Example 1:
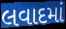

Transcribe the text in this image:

લવાદમાં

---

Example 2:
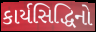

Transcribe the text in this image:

કાર્યસિદ્ધિનો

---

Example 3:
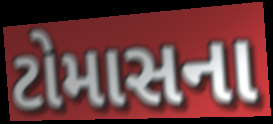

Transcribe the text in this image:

ટોમાસના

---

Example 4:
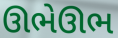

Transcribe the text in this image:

ઊભેઊભ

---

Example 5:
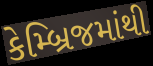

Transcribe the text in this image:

કેમ્બ્રિજમાંથી